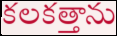
కలకత్తాను